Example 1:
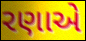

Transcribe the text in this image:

રણાએ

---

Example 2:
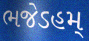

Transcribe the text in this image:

ભજેઽહમ્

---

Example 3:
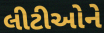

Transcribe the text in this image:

લીટીઓને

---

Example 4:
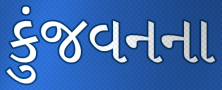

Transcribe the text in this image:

કુંજવનના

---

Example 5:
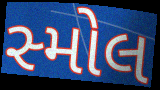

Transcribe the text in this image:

સ્મોલ